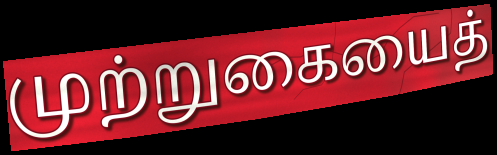
முற்றுகையைத்